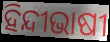
ହିନ୍ଦୀଭାଷୀ